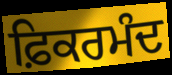
ਫ਼ਿਕਰਮੰਦ